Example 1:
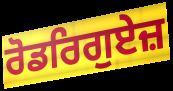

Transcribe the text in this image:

ਰੋਡਰਿਗੁਏਜ਼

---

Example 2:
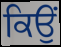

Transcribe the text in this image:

ਕਿਉੰ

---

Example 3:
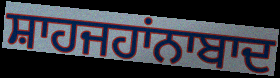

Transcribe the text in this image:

ਸ਼ਾਹਜਹਾਂਨਾਬਾਦ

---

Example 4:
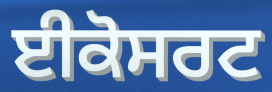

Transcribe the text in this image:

ਈਕੋਸਰਟ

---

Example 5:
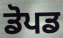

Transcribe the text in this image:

ਡੋਪਡ